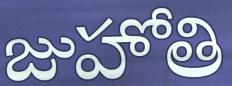
జుహోతి